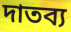
দাতব্য